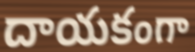
దాయకంగా